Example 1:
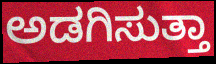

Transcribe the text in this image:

ಅಡಗಿಸುತ್ತಾ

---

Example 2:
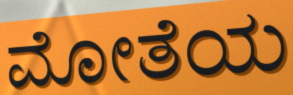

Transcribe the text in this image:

ಮೋತೆಯ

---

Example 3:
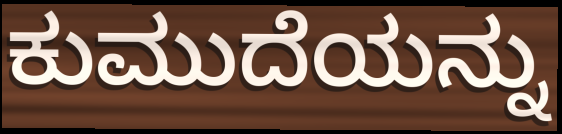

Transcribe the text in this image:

ಕುಮುದೆಯನ್ನು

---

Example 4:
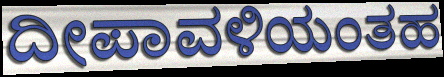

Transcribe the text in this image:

ದೀಪಾವಳಿಯಂತಹ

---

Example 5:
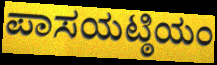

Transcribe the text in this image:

ಪಾಸಯಟ್ಠಿಯಂ